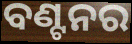
ବଣ୍ଟନର